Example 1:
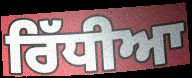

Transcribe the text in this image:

ਰਿੱਧੀਆ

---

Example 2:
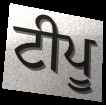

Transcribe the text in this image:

ਟੀਪੂ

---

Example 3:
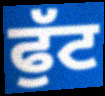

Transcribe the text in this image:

ਫੁੱਟ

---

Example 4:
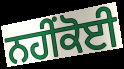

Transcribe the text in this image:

ਨਹੀਂਕੋਈ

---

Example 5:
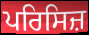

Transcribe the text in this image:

ਪਰਿਸਿਜ਼